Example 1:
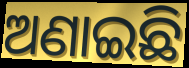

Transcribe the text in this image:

ଅଣାଇଛି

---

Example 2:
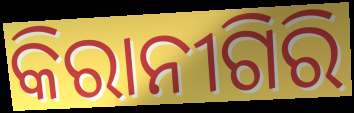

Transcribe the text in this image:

କିରାନୀଗିରି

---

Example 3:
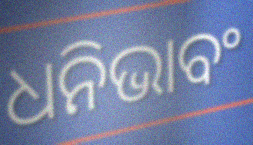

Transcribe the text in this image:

ଧନିଭାବଂ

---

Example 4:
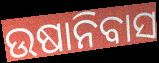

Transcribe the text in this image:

ଉଷାନିବାସ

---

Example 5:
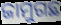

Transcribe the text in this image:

ଜାମୁଗଛ